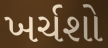
ખર્ચશો